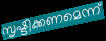
സൃഷ്ടിക്കണമെന്ന്